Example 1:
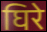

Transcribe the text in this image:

घिरे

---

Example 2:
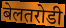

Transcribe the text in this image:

बेलतरोडी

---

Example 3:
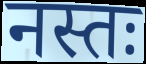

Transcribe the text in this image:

नस्तः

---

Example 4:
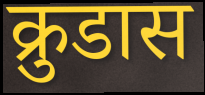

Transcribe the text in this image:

क्रुडास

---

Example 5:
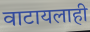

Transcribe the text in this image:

वाटायलाही